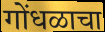
गोंधळाचा